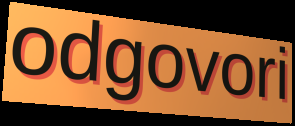
odgovori